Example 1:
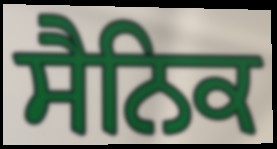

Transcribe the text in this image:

ਸੈਨਿਕ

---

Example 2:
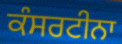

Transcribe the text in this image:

ਕੰਸਰਟੀਨਾ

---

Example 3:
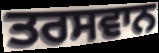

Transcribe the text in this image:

ਤਰਸਵਾਨ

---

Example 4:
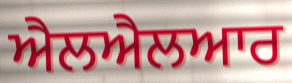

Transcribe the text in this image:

ਐਲਐਲਆਰ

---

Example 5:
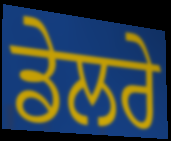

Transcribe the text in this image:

ਡੇਲਰੇ